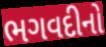
ભગવદીનો